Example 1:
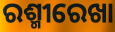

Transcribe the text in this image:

ରଶ୍ମୀରେଖା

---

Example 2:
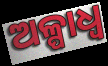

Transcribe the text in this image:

ଅଳ୍ପାଧ୍ଵ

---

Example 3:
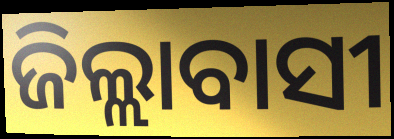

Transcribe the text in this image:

ଜିଲ୍ଲାବାସୀ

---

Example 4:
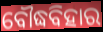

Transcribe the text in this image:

ବୌଦ୍ଧବିହାର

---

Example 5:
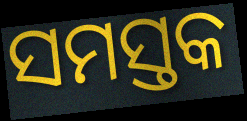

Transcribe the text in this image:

ସମସ୍ତକ